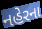
નહેરના